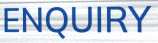
ENQUIRY